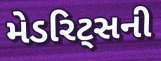
મેડરિટ્સની